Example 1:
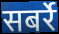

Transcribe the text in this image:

सबर्रे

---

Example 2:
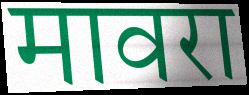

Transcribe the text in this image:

मावरा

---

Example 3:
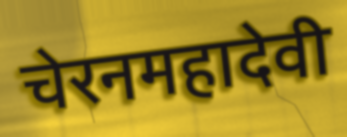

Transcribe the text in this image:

चेरनमहादेवी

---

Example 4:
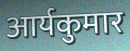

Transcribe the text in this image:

आर्यकुमार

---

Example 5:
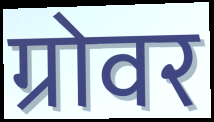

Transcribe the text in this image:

ग्रोवर